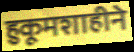
हुकूमशाहीने